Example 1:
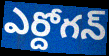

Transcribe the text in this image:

ఎర్దోగన్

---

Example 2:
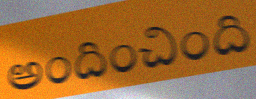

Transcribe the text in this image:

అందించింది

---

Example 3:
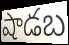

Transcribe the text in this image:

షాడబ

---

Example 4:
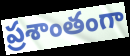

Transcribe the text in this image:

ప్రశాంతంగా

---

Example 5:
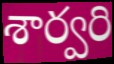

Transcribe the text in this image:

శార్వరి